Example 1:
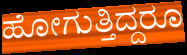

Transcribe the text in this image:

ಹೋಗುತ್ತಿದ್ದರೂ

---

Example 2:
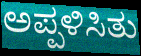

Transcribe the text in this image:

ಅಪ್ಪಳಿಸಿತು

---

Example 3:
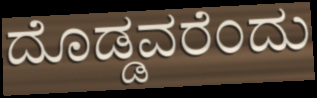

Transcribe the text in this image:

ದೊಡ್ಡವರೆಂದು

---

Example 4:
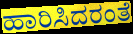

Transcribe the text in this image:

ಹಾರಿಸಿದರಂತೆ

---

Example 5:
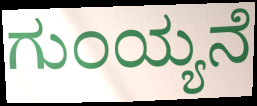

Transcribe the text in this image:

ಗುಂಯ್ಯನೆ